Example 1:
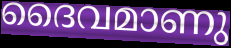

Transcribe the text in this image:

ദൈവമാണു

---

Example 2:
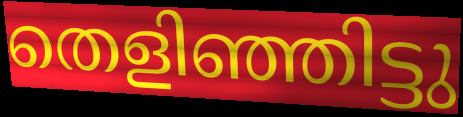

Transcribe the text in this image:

തെളിഞ്ഞിട്ടു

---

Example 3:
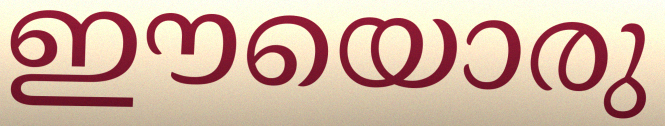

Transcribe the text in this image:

ഈയൊരു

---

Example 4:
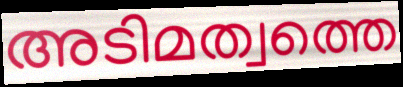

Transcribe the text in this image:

അടിമത്വത്തെ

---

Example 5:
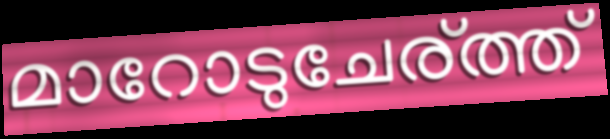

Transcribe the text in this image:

മാറോടുചേര്ത്ത്